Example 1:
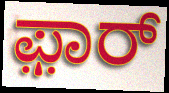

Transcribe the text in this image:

ಫ಼ಾರ್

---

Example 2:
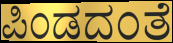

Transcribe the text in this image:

ಪಿಂಡದಂತೆ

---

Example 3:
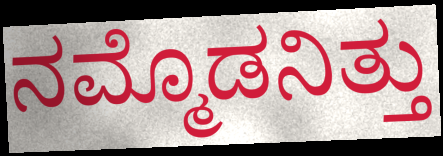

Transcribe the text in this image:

ನಮ್ಮೊಡನಿತ್ತು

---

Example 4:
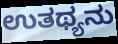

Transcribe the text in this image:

ಉತಥ್ಯನು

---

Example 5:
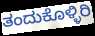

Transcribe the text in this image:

ತಂದುಕೊಳ್ಳಿರಿ